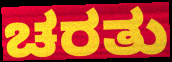
ಚರತು